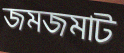
জমজমাট